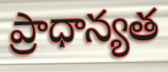
ప్రాధాన్యత